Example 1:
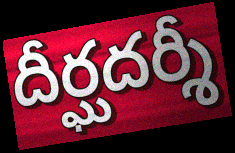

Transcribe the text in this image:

దీర్ఘదర్శీ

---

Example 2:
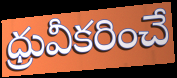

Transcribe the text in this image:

ధ్రువీకరించే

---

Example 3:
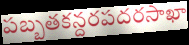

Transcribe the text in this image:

పబ్బతకన్దరపదరసాఖా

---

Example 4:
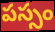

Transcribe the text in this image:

పస్సం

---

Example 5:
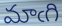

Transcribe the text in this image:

మాఁగి